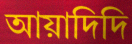
আয়াদিদি